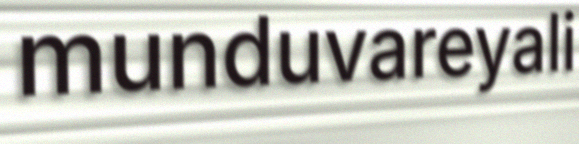
munduvareyali